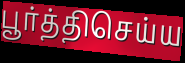
பூர்த்திசெய்ய